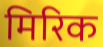
मिरिक